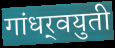
गांधर्वयुती